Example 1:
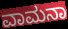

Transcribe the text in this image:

ವಾಮನಾ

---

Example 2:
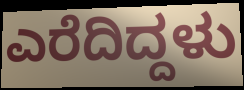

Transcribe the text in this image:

ಎರೆದಿದ್ದಳು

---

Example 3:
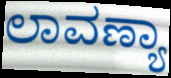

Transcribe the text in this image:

ಲಾವಣ್ಯಾ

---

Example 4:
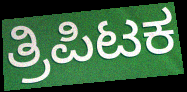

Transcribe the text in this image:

ತ್ರಿಪಿಟಕ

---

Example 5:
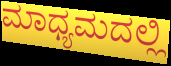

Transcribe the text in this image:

ಮಾಧ್ಯಮದಲ್ಲಿ